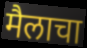
मैलाचा